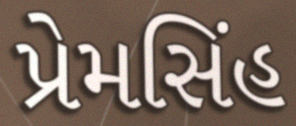
પ્રેમસિંહ